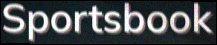
Sportsbook